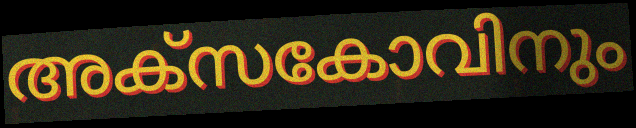
അക്സകോവിനും